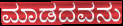
ಮಾಡದವನು